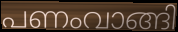
പണംവാങ്ങി